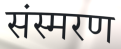
संस्मरण